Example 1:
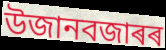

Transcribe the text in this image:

উজানবজাৰৰ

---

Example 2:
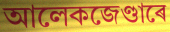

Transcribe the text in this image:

আলেকজেণ্ডাৰে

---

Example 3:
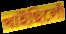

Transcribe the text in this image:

খাইছিলোঁ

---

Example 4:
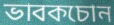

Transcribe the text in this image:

ভাবকচোন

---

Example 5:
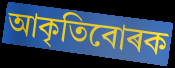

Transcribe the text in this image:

আকৃতিবোৰক